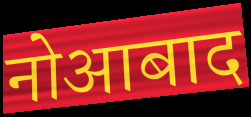
नोआबाद